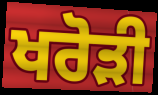
ਖਰੋੜੀ